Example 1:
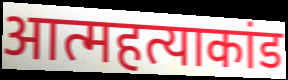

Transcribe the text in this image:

आत्महत्याकांड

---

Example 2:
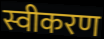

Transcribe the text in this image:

स्वीकरण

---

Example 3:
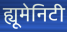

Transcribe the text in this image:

ह्यूमेनिटी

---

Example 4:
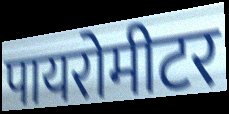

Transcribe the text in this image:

पायरोमीटर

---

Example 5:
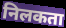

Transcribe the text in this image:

निलकता